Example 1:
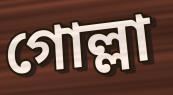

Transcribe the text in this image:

গোল্লা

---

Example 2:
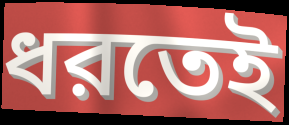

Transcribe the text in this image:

ধরতেই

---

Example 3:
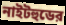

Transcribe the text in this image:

নাইটহুডের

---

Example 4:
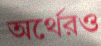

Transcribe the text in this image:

অর্থেরও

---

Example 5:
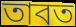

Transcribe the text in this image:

তাবত